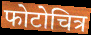
फोटोचित्र